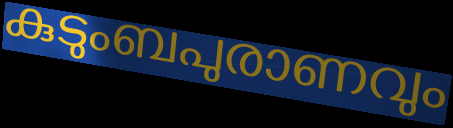
കുടുംബപുരാണവും